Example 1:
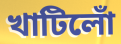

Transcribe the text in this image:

খাটিলোঁ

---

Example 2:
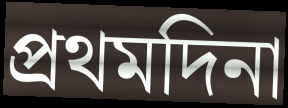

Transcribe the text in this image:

প্ৰথমদিনা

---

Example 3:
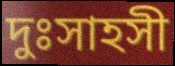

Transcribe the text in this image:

দুঃসাহসী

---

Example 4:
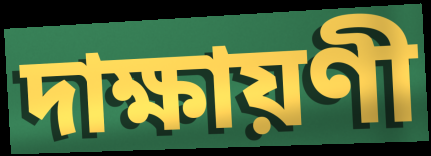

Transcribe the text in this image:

দাক্ষায়ণী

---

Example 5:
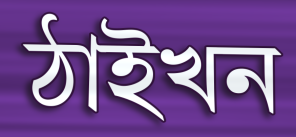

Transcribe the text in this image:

ঠাইখন